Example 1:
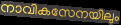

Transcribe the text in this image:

നാവികസേനയിലും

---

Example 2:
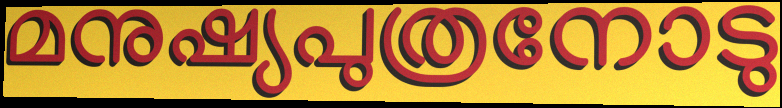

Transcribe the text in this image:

മനുഷ്യപുത്രനോടു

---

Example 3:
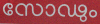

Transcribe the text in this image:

സോഢും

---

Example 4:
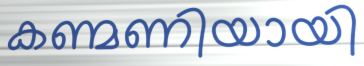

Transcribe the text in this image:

കണ്മണിയായി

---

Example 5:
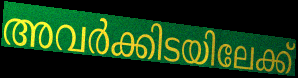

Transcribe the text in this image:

അവർക്കിടയിലേക്ക്